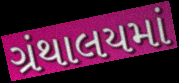
ગ્રંથાલયમાં